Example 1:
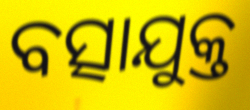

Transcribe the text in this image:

ବତ୍ସାଯୁକ୍ତ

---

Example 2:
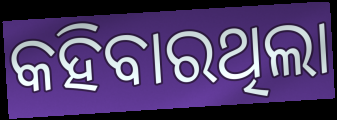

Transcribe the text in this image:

କହିବାରଥିଲା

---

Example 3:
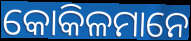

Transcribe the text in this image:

କୋକିଳମାନେ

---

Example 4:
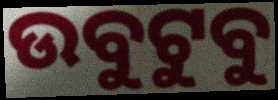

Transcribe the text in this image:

ଉବୁଟୁବୁ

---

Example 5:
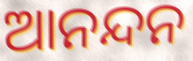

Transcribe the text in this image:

ଆନନ୍ଦନ